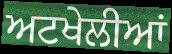
ਅਟਖੇਲੀਆਂ